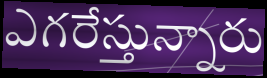
ఎగరేస్తున్నారు